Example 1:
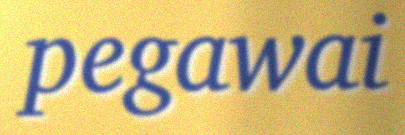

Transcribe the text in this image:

pegawai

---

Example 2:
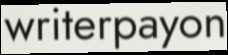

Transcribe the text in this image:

writerpayon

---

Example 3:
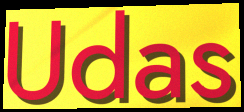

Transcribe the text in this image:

Udas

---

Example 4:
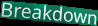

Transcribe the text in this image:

Breakdown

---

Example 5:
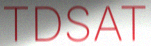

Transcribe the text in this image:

TDSAT